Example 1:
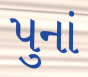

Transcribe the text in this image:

પુનાં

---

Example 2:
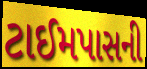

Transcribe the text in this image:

ટાઈમપાસની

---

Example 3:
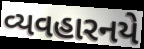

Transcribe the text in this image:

વ્યવહારનયે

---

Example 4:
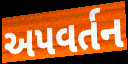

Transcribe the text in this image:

અપવર્તન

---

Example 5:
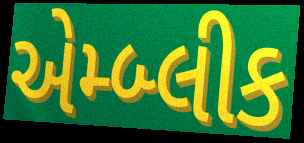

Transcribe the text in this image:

એમ્બ્લીક